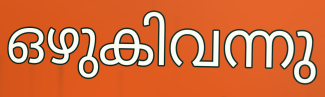
ഒഴുകിവന്നു